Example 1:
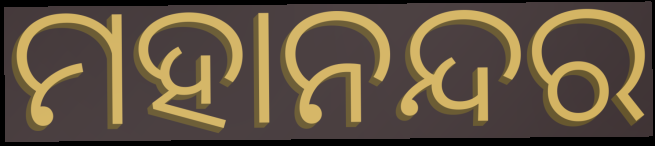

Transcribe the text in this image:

ମହାନନ୍ଦର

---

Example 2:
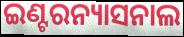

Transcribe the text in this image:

ଇଣ୍ଟରନ୍ୟାସନାଲ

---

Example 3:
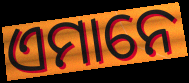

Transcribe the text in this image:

ଏମାନେ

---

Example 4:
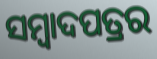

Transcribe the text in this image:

ସମ୍ବାଦପତ୍ରର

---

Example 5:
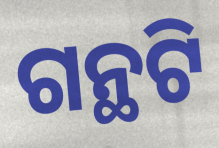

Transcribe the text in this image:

ଗନ୍ଥଟି